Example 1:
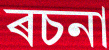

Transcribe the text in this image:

ৰচনা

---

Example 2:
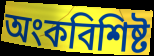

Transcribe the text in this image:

অংকবিশিষ্ট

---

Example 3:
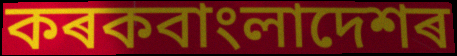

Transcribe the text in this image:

কৰকবাংলাদেশৰ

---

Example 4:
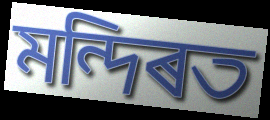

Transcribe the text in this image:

মন্দিৰত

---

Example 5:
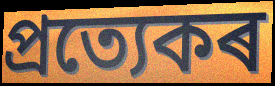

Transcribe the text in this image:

প্ৰত্যেকৰ